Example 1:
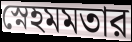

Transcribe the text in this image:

স্নেহমমতার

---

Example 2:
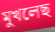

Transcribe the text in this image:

মুখলেছ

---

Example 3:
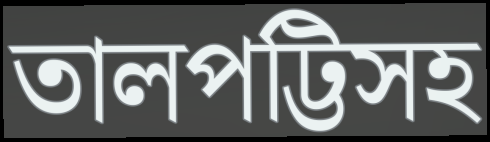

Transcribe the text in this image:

তালপট্টিসহ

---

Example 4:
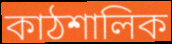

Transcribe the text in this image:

কাঠশালিক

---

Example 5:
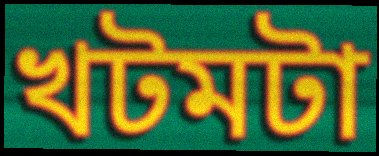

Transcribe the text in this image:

খটমটা